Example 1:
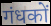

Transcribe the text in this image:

गंधकों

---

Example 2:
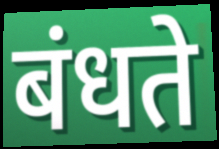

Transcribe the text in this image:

बंधते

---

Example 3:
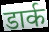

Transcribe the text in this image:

डार्क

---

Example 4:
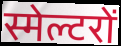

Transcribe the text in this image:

स्मेल्टरों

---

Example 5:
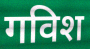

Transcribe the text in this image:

गविश